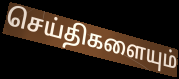
செய்திகளையும்